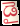
డై